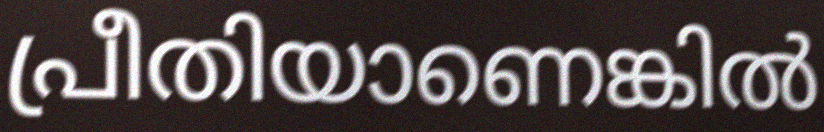
പ്രീതിയാണെങ്കിൽ